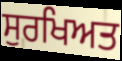
ਸੁਰਖਿਅਤ